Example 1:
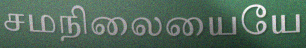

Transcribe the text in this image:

சமநிலையையே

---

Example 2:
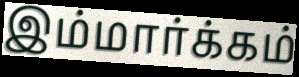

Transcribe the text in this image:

இம்மார்க்கம்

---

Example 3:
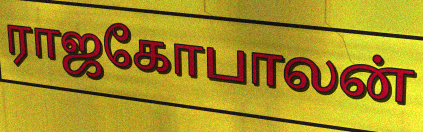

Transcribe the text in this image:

ராஜகோபாலன்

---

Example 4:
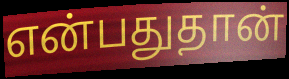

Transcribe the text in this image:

என்பதுதான்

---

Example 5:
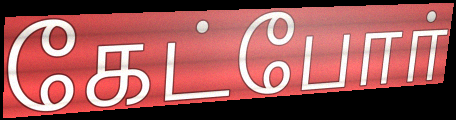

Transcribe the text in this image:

கேட்போர்